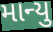
માન્યુ